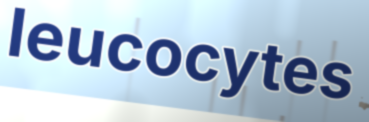
leucocytes